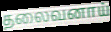
தலைவனாய்